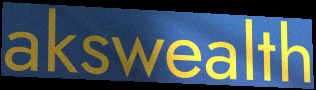
akswealth